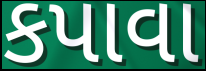
કપાવા